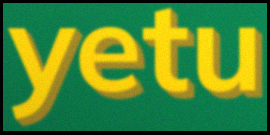
yetu